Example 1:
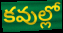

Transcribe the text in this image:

కవుల్లో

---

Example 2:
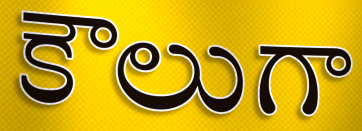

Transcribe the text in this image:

కౌలుగా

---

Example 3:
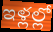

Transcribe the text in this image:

ఇళ్లల్లో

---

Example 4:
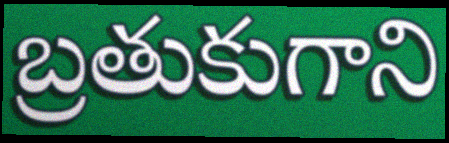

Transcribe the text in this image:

బ్రతుకుగాని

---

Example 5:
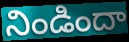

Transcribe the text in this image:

నిండిందా